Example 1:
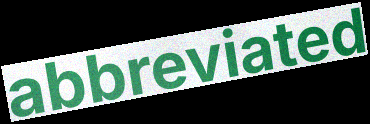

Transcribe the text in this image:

abbreviated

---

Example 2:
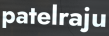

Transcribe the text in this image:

patelraju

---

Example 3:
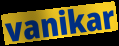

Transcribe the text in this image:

vanikar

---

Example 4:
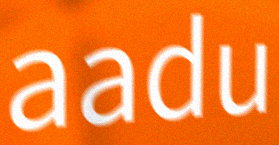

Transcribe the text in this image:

aadu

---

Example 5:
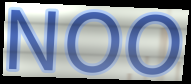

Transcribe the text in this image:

NOO